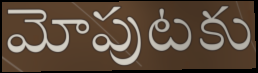
మోపుటకు